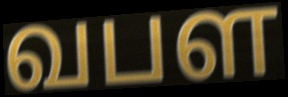
வபள